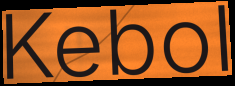
Kebol